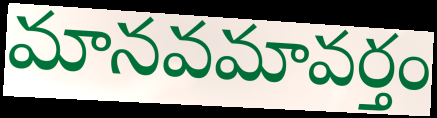
మానవమావర్తం